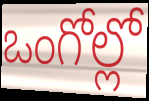
ఒంగోల్లో